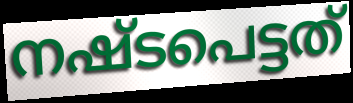
നഷ്ടപെട്ടത്